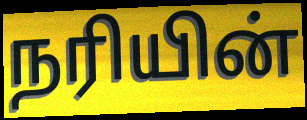
நரியின்